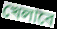
খেলাবে